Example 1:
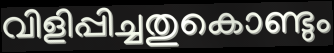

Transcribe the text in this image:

വിളിപ്പിച്ചതുകൊണ്ടും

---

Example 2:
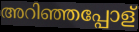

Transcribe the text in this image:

അറിഞ്ഞപ്പോള്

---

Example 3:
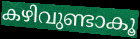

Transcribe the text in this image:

കഴിവുണ്ടാകൂ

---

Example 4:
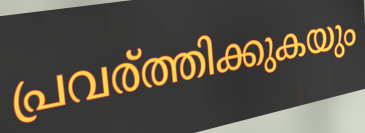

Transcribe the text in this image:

പ്രവര്ത്തിക്കുകയും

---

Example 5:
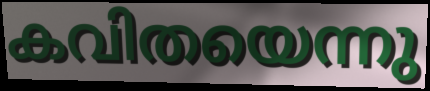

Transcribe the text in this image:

കവിതയെന്നു